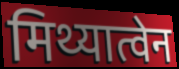
मिथ्यात्वेन